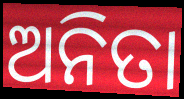
ଅନିତା